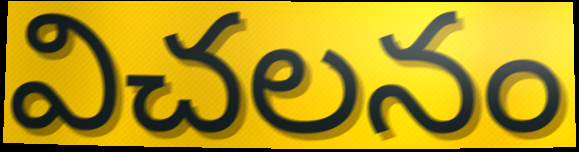
విచలనం